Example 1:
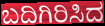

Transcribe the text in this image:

ಬದಿಗಿರಿಸಿದ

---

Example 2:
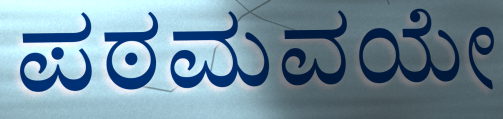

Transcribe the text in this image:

ಪಠಮವಯೇ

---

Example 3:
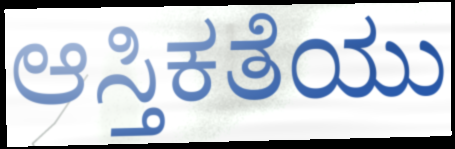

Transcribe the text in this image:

ಆಸ್ತಿಕತೆಯು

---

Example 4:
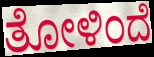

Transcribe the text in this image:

ತೋಳಿಂದೆ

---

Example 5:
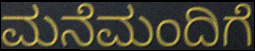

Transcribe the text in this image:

ಮನೆಮಂದಿಗೆ